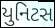
યુનિટસ